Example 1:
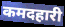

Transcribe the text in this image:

कमदहारी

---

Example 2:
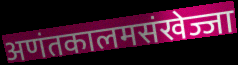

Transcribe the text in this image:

अणंतकालमसंखेज्जा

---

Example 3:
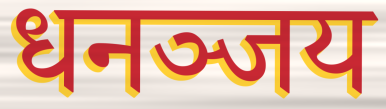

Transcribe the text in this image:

धनञ्जय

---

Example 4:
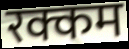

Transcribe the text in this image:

रक्कम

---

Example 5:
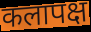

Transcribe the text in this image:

कलापक्ष